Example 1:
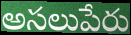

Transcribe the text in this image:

అసలుపేరు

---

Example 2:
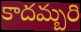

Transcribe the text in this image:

కాదమ్బరి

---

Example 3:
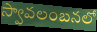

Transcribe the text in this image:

స్వావలంబనలో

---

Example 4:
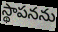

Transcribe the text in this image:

స్థాపనను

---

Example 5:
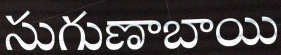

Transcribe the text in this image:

సుగుణాబాయి